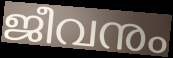
ജീവനും